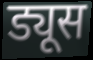
ड्यूस